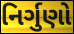
નિર્ગુણો